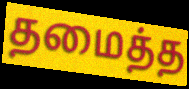
தமைத்த